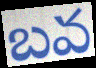
బవ